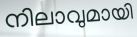
നിലാവുമായി